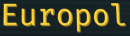
Europol